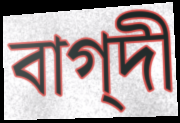
বাগ্‌দী